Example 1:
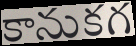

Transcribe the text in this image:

కానుకగ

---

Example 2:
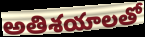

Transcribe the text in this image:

అతిశయాలతో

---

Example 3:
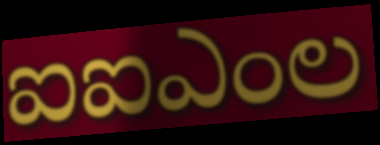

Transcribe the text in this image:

ఐఐఎంల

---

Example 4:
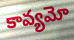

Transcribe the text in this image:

కావ్యమో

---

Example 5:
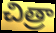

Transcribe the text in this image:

చిత్రా